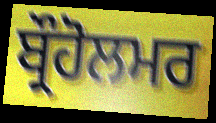
ਬ੍ਰੌਹੋਲਮਰ